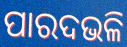
ପାରଦଭଳି